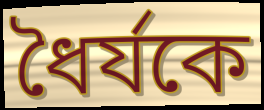
ধৈর্যকে